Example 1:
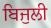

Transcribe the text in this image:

ਬਿਜੁਲੀ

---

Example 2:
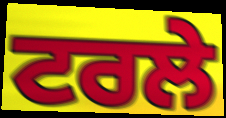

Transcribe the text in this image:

ਟਰਲੇ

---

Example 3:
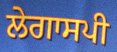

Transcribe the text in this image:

ਲੇਗਾਸਪੀ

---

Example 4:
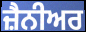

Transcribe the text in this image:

ਜ਼ੈਨੀਅਰ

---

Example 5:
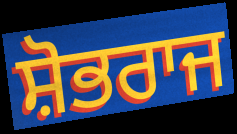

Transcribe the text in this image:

ਸ਼ੋਭਰਾਜ